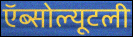
ऍब्सोल्यूटली